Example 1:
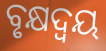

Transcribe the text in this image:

ବୃକ୍ଷଦ୍ୱୟ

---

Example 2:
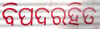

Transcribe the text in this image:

ବିପଦରହିତ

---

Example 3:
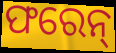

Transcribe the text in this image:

ଫରେନ୍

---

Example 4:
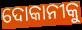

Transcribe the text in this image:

ଦୋକାନୀକୁ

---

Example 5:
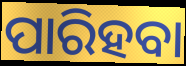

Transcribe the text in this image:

ପାରିହବା